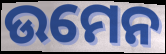
ଉମେନ